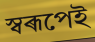
স্বৰূপেই